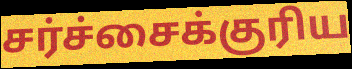
சர்ச்சைக்குரிய